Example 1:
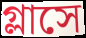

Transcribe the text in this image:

গ্লাসে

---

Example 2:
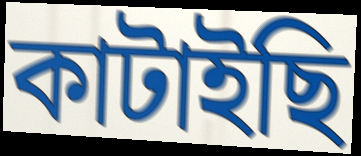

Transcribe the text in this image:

কাটাইছি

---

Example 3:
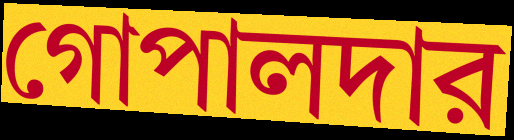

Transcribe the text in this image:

গোপালদার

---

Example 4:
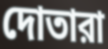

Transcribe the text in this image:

দোতারা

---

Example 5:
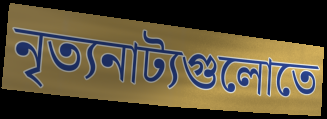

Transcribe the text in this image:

নৃত্যনাট্যগুলোতে